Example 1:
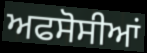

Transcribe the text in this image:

ਅਫਸੋਸੀਆਂ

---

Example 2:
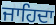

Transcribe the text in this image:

ਜਾਹਿਦਾ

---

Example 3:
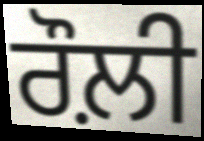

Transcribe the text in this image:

ਰੌਲ਼ੀ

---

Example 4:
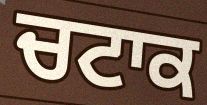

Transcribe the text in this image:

ਚਟਾਕ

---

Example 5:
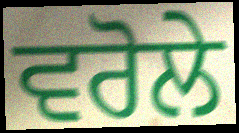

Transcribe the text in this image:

ਵਰੋਲੇ